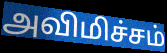
அவிமிச்சம்